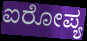
ಐರೋಪ್ಯ